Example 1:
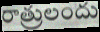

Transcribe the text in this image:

రాత్రులందు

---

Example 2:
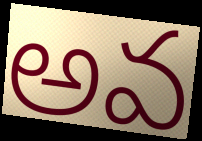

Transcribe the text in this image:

అవ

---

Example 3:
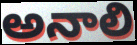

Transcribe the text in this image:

అనాలి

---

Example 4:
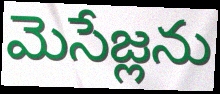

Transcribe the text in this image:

మెసేజ్లను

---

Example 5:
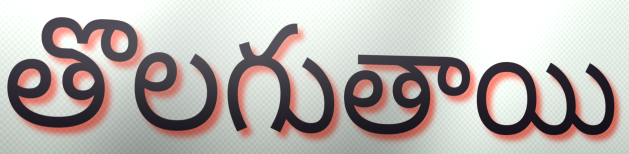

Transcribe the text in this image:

తొలగుతాయి